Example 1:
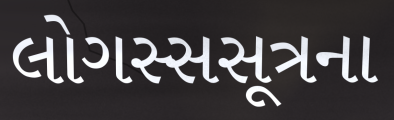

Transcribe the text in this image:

લોગસ્સસૂત્રના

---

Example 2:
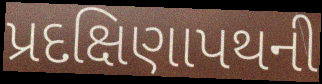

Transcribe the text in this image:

પ્રદક્ષિણાપથની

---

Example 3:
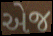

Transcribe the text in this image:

એજ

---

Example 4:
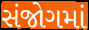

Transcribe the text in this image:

સંજોગમાં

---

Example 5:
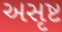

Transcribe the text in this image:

અસૃષ્ટ